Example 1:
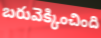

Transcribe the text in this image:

బరువెక్కించింది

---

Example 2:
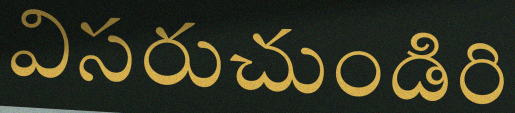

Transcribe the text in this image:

విసరుచుండిరి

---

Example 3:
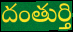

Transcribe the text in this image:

దంతుర్తి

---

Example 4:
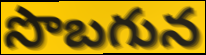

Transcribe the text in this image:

సొబగున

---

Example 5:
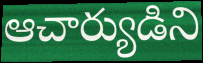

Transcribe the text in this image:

ఆచార్యుడిని